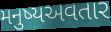
મનુષ્યઅવતાર